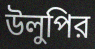
উলুপির